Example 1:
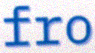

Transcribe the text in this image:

fro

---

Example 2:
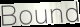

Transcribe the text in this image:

Bound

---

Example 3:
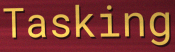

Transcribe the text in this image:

Tasking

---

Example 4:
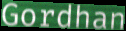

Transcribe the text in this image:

Gordhan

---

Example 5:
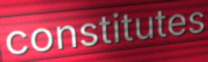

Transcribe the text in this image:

constitutes